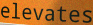
elevates